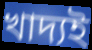
খাদ্যই